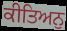
ਕੀਤਿਅਨੁ